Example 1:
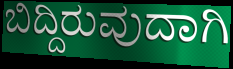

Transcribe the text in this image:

ಬಿದ್ದಿರುವುದಾಗಿ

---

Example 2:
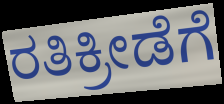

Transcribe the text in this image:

ರತಿಕ್ರೀಡೆಗೆ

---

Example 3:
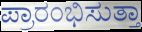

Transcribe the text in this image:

ಪ್ರಾರಂಭಿಸುತ್ತಾ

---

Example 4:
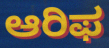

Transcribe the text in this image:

ಆರಿಫ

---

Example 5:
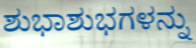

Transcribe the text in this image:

ಶುಭಾಶುಭಗಳನ್ನು